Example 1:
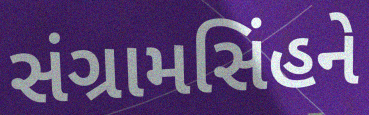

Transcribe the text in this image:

સંગ્રામસિંહને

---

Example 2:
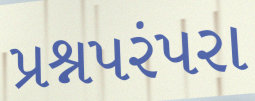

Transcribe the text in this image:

પ્રશ્નપરંપરા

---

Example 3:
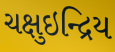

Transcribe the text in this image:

ચક્ષુઇન્દ્રિય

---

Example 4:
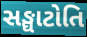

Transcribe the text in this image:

સઙ્ઘાટોતિ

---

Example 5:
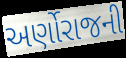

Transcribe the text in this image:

અર્ણોરાજની